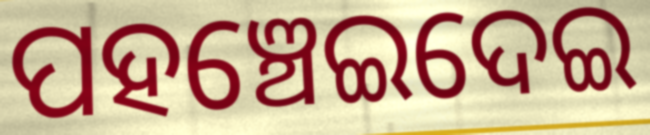
ପହଞ୍ଚେଇଦେଇ